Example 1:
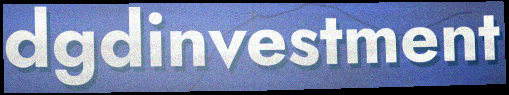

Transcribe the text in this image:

dgdinvestment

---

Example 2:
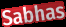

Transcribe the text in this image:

Sabhas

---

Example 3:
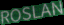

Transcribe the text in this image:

ROSLAN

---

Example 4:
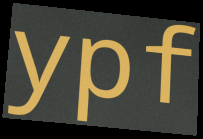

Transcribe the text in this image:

ypf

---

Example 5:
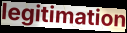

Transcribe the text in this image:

legitimation